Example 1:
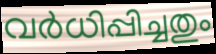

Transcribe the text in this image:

വർധിപ്പിച്ചതും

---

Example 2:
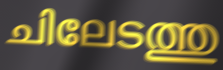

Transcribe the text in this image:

ചിലേടത്തു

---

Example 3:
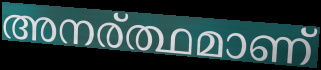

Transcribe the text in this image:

അനര്ത്ഥമാണ്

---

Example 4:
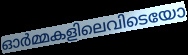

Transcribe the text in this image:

ഓർമ്മകളിലെവിടെയോ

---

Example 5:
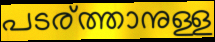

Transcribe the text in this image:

പടര്ത്താനുള്ള